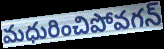
మధురించిపోవగన్